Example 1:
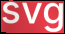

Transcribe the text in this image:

svg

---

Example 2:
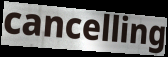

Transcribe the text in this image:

cancelling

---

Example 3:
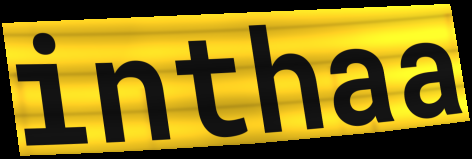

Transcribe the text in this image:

inthaa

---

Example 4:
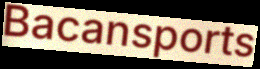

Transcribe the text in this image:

Bacansports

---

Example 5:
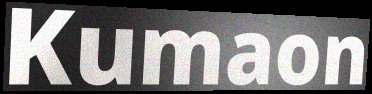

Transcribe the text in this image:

Kumaon